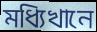
মধ্যিখানে